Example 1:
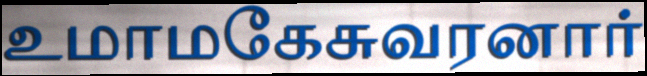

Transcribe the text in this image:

உமாமகேசுவரனார்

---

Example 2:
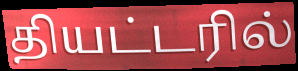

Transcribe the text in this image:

தியட்டரில்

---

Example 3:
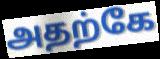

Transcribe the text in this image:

அதற்கே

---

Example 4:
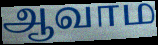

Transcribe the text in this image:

ஆவாம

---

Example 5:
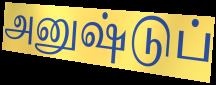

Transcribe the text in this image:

அனுஷ்டுப்